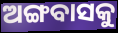
ଅଙ୍ଗବାସକୁ